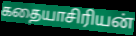
கதையாசிரியன்